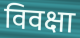
विवक्षा